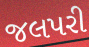
જલપરી